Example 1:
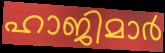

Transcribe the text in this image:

ഹാജിമാർ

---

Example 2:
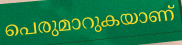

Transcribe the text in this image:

പെരുമാറുകയാണ്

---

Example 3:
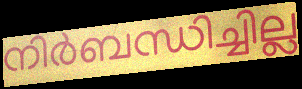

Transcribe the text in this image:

നിർബന്ധിച്ചില്ല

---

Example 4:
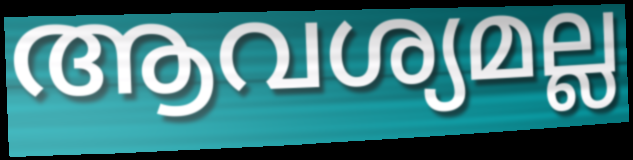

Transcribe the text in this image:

ആവശ്യമല്ല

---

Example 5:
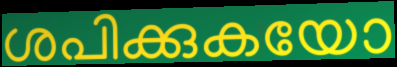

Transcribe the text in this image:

ശപിക്കുകയോ